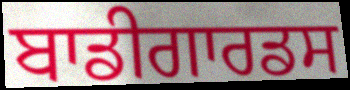
ਬਾਡੀਗਾਰਡਸ